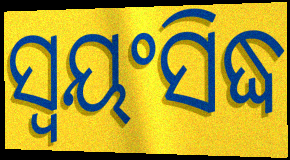
ସ୍ୱୟଂସିଦ୍ଧ